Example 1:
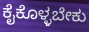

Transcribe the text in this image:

ಕೈಕೊಳ್ಳಬೇಕು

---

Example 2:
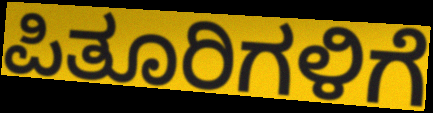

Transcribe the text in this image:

ಪಿತೂರಿಗಳಿಗೆ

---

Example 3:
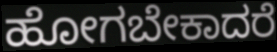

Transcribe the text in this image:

ಹೋಗಬೇಕಾದರೆ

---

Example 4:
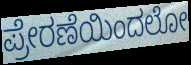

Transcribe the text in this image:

ಪ್ರೇರಣೆಯಿಂದಲೋ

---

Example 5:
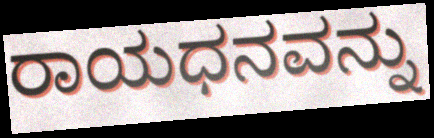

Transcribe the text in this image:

ರಾಯಧನವನ್ನು